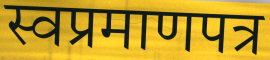
स्वप्रमाणपत्र